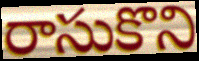
రాసుకొని